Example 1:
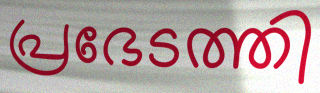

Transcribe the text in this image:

പ്രഭേടത്തി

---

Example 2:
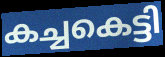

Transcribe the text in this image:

കച്ചകെട്ടി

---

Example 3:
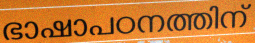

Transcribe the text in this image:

ഭാഷാപഠനത്തിന്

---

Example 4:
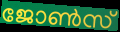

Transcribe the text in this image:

ജോൺസ്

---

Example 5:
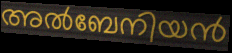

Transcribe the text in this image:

അൽബേനിയൻ